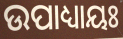
ଉପାଧ୍ୟାୟଃ